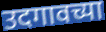
उदगावच्या